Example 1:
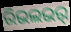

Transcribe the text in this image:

ରିଭଲଭର୍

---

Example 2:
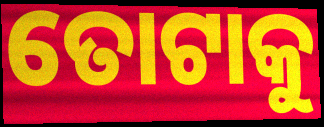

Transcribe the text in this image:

ତୋଟାକୁ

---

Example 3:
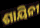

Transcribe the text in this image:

ଶାୟିନୀ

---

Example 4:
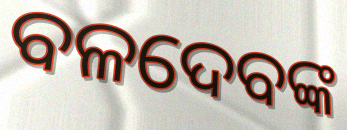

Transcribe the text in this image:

ବଳଦେବଙ୍କ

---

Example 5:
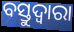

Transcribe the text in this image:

ବସ୍ତୁଦ୍ଵାରା